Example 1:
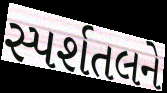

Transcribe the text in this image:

સ્પર્શતલને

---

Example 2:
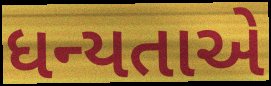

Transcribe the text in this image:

ધન્યતાએ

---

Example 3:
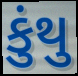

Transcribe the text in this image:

કુંથુ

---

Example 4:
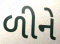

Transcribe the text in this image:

ળીને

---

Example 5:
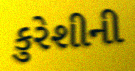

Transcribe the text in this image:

કુરેશીની